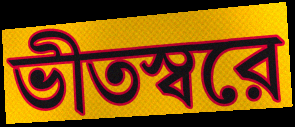
ভীতস্বরে